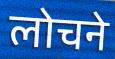
लोचने